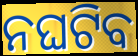
ନଘଟିବ